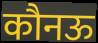
कौनऊ